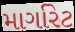
માર્ગારેટ